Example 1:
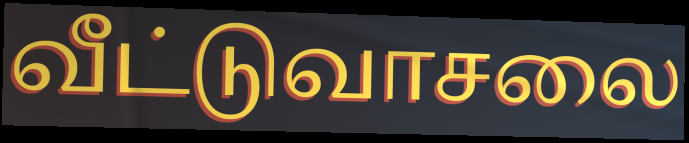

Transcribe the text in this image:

வீட்டுவாசலை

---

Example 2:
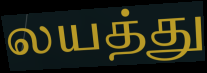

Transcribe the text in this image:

லயத்து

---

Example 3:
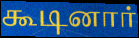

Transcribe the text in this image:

கூடினார்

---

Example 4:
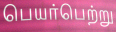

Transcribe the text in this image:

பெயர்பெற்று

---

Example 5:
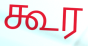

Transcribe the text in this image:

கூர